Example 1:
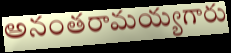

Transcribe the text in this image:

అనంతరామయ్యగారు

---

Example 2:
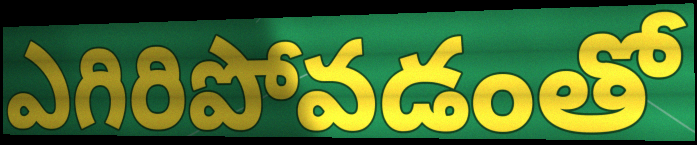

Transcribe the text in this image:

ఎగిరిపోవడంతో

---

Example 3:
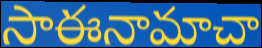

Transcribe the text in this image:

సాఈనామాచా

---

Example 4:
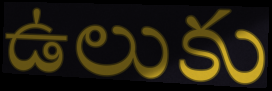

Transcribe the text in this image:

ఉలుకు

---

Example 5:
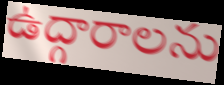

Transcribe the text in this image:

ఉద్గారాలను